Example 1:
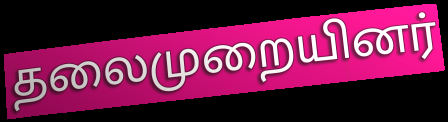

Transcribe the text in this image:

தலைமுறையினர்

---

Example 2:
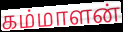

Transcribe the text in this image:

கம்மாளன்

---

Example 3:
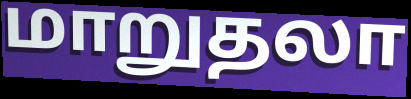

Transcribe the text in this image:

மாறுதலா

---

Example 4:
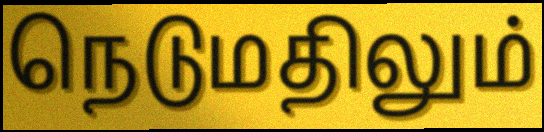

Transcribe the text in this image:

நெடுமதிலும்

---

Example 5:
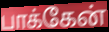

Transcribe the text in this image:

பாக்கேன்